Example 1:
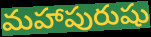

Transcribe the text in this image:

మహాపురుషు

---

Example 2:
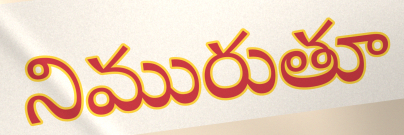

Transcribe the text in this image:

నిమురుతూ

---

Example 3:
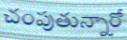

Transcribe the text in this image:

చంపుతున్నారో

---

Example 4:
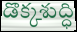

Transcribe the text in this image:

డొక్కశుద్ధి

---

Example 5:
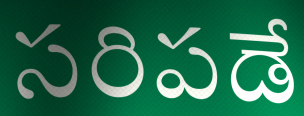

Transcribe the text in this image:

సరిపడే